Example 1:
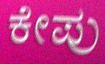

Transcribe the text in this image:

ಕೇಪು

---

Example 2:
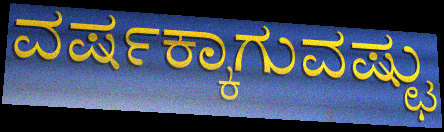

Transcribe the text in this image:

ವರ್ಷಕ್ಕಾಗುವಷ್ಟು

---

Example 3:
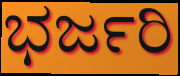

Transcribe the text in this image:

ಭರ್ಜರಿ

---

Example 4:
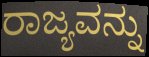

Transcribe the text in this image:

ರಾಜ್ಯವನ್ನು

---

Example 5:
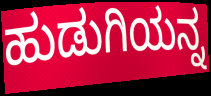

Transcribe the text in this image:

ಹುಡುಗಿಯನ್ನ